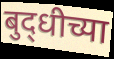
बुद्धीच्या